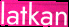
latkan